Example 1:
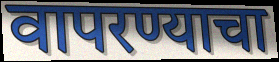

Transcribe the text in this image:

वापरण्याचा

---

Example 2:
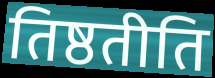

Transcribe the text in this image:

तिष्ठतीति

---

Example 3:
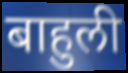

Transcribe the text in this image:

बाहुली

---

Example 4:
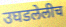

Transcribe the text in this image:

उघडलेलीच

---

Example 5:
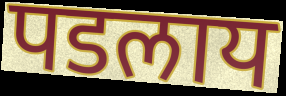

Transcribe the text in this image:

पडलाय